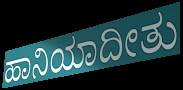
ಹಾನಿಯಾದೀತು